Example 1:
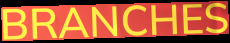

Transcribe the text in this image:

BRANCHES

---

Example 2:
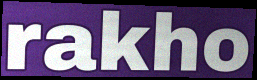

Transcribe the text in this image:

rakho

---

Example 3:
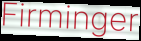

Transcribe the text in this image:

Firminger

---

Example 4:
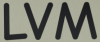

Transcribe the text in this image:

LVM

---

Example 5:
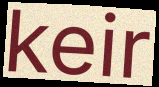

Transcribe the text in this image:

keir